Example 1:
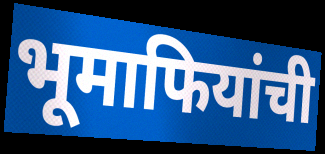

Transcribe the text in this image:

भूमाफियांची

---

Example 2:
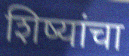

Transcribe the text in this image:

शिष्यांचा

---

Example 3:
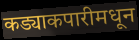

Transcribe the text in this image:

कड्याकपारीमधून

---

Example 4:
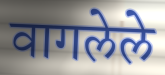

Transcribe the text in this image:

वागलेले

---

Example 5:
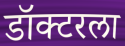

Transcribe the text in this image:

डॉक्टरला